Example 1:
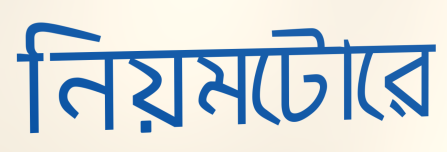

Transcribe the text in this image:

নিয়মটোৱে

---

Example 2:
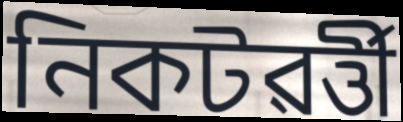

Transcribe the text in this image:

নিকটৱৰ্ত্তী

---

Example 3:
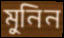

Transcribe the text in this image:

মুনিন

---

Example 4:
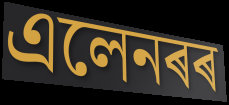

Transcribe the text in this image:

এলেনৰৰ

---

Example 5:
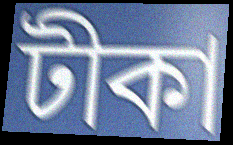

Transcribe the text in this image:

টীকা